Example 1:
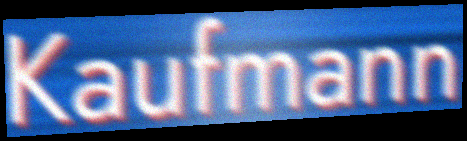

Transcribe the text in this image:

Kaufmann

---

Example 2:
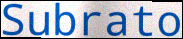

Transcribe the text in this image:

Subrato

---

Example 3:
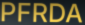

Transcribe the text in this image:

PFRDA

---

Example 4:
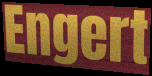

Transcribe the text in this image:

Engert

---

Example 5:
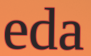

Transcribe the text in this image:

eda